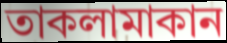
তাকলামাকান